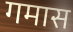
गमास